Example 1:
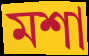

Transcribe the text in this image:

মশা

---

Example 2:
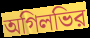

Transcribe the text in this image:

অগিলভির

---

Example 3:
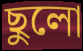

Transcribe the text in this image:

ছুলো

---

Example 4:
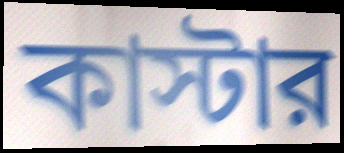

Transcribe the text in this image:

কাস্টার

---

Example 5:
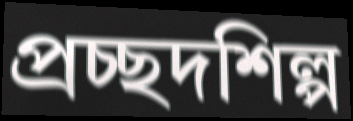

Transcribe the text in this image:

প্রচ্ছদশিল্প